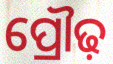
ପ୍ରୌଢ଼